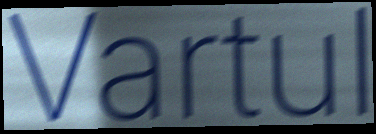
Vartul